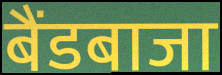
बैंडबाजा